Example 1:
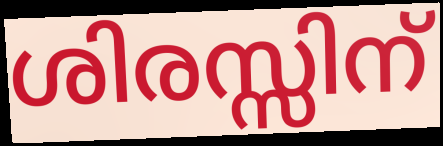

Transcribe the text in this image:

ശിരസ്സിന്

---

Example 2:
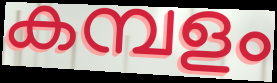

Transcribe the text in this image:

കമ്പളം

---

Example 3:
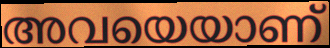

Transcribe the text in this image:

അവയെയാണ്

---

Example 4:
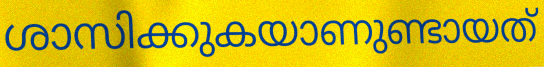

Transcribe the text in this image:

ശാസിക്കുകയാണുണ്ടായത്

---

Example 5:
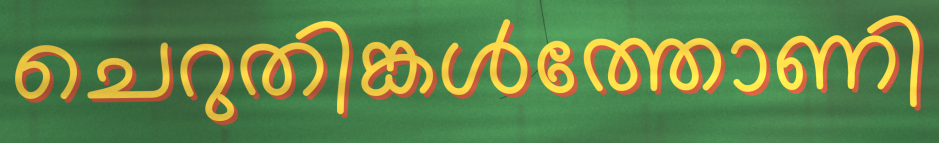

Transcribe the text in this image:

ചെറുതിങ്കൾത്തോണി